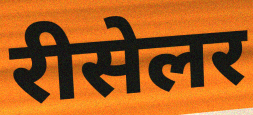
रीसेलर